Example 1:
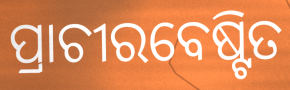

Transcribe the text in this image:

ପ୍ରାଚୀରବେଷ୍ଟିତ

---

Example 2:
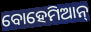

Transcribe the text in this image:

ବୋହେମିଆନ୍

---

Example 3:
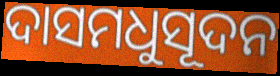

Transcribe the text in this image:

ଦାସମଧୁସୂଦନ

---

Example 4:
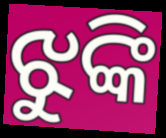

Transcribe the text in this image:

ଝୁଙ୍କି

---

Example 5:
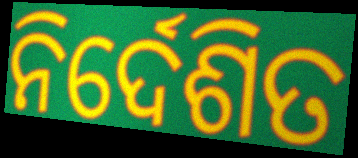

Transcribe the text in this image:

ନିର୍ଦେଶିତ